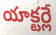
యాక్టర్లే